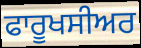
ਫਾਰੂਖਸੀਅਰ